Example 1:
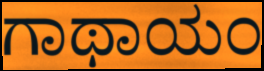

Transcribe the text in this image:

ಗಾಥಾಯಂ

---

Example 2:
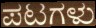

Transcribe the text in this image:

ಪಟಗಳು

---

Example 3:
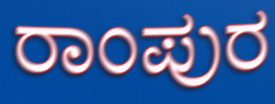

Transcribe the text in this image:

ರಾಂಪುರ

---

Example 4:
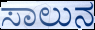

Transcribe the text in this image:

ಸಾಲುನ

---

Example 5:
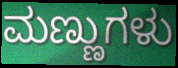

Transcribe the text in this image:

ಮಣ್ಣುಗಳು